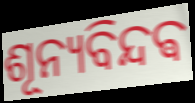
ଶୂନ୍ଯବିନ୍ଦଵ